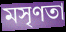
মসৃণতা